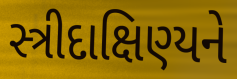
સ્ત્રીદાક્ષિણ્યને